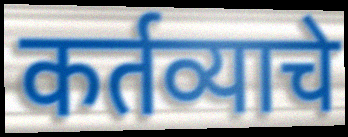
कर्तव्याचे